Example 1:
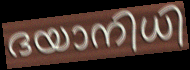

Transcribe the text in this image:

ദയാനിധി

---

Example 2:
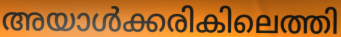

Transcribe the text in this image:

അയാൾക്കരികിലെത്തി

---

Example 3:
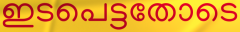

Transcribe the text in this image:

ഇടപെട്ടതോടെ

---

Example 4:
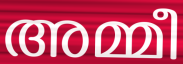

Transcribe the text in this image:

അമ്മീ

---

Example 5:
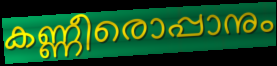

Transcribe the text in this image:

കണ്ണീരൊപ്പാനും